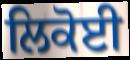
ਲਿਕੋਈ